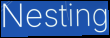
Nesting